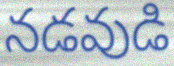
నడవుడి